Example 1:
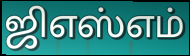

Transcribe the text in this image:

ஜிஎஸ்எம்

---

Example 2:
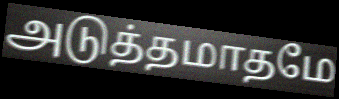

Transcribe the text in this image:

அடுத்தமாதமே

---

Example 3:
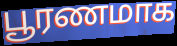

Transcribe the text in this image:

பூரணமாக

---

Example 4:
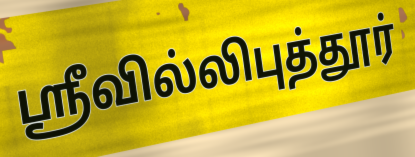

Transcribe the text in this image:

ஸ்ரீவில்லிபுத்தூர்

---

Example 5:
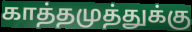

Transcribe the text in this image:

காத்தமுத்துக்கு